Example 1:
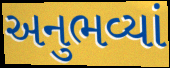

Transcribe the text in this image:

અનુભવ્યાં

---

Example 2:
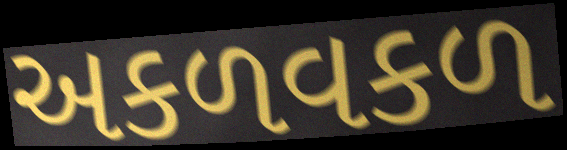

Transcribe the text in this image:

અકળવકળ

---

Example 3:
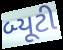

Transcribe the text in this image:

બ્યૂટી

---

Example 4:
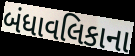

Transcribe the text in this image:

બંધાવલિકાના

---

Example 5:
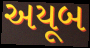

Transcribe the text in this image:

અયૂબ